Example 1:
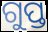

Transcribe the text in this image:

ଗୁପ୍ତ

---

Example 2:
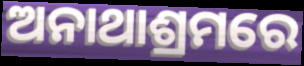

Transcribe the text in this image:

ଅନାଥାଶ୍ରମରେ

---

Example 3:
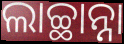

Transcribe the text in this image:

ଲାଚ୍ଛାନ୍ନା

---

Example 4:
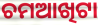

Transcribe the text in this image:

ଚମଆଖିଟା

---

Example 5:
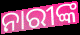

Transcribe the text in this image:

ନାରୀଙ୍କ